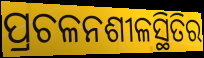
ପ୍ରଚଳନଶୀଳସ୍ଥିତିର